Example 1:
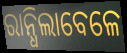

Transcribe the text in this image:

ରାନ୍ଧିଲାବେଳେ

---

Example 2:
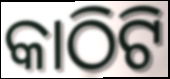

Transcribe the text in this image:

କାଠିଟି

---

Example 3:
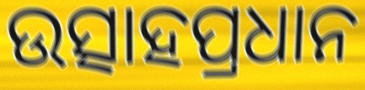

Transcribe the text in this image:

ଉତ୍ସାହପ୍ରଧାନ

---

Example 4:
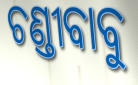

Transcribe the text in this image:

ଚଣ୍ଡୀବାବୁ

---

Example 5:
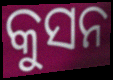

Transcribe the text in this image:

କୁସନ